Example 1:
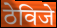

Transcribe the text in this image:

ठेविजे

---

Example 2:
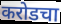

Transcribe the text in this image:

करोडचा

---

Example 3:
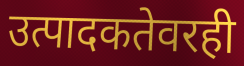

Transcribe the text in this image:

उत्पादकतेवरही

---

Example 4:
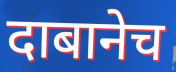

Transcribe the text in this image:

दाबानेच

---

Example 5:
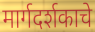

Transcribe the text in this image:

मार्गदर्शकाचे